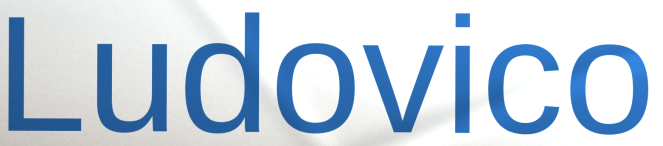
Ludovico